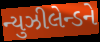
ન્યુઝીલેન્ડને